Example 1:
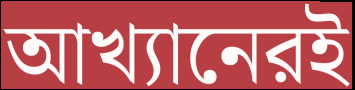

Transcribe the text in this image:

আখ্যানেরই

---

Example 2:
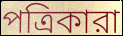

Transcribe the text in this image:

পত্রিকারা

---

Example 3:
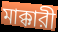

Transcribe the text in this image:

মাক্কারী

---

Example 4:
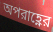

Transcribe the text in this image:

অপরাহ্ণের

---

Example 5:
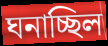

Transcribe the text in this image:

ঘনাচ্ছিল